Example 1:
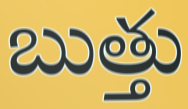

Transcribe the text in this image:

బుత్తు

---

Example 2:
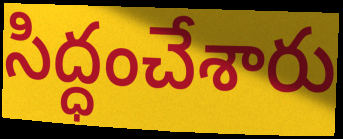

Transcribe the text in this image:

సిద్ధంచేశారు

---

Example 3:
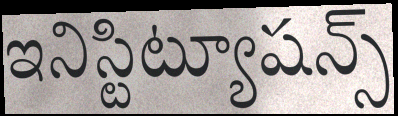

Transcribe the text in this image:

ఇనిస్టిట్యూషన్స్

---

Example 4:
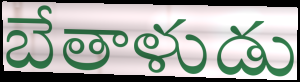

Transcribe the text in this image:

బేతాళుడు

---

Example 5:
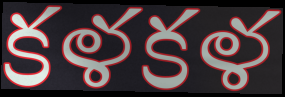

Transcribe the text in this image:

కళకళ